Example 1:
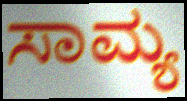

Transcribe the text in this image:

ಸಾಮ್ಯ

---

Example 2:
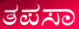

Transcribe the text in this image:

ತಪಸಾ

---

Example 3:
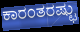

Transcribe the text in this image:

ಕಾರಂತರಷ್ಟು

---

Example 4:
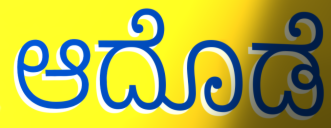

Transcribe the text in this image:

ಆದೊಡೆ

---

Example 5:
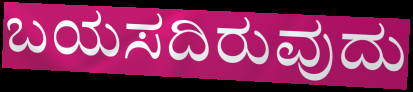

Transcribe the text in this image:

ಬಯಸದಿರುವುದು